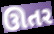
ઊતર